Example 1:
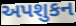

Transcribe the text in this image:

અપશુકન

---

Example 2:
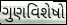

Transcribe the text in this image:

ગુણવિશેષો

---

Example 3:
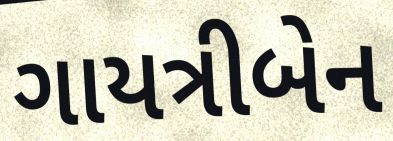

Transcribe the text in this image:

ગાયત્રીબેન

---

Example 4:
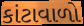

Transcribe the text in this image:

કાંટાવાળો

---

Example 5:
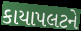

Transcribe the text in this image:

કાયાપલટને